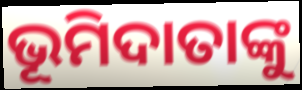
ଭୂମିଦାତାଙ୍କୁ